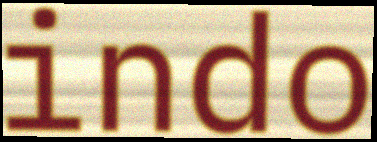
indo